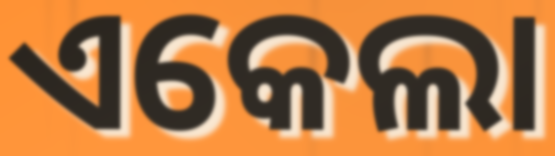
ଏକେଲା